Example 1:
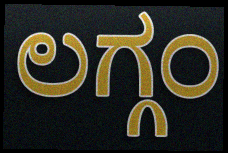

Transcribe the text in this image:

ಲಗ್ಗಂ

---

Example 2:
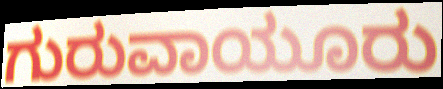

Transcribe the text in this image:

ಗುರುವಾಯೂರು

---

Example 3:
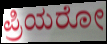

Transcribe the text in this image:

ಪ್ರಿಯರೋ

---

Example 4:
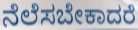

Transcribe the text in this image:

ನೆಲೆಸಬೇಕಾದರೆ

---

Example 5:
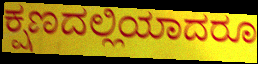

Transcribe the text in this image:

ಕ್ಷಣದಲ್ಲಿಯಾದರೂ